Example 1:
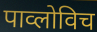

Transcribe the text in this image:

पाव्लोविच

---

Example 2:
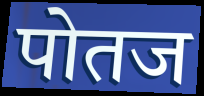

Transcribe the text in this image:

पोतज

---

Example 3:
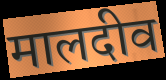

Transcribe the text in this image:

मालदीव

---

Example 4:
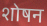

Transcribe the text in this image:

शोषन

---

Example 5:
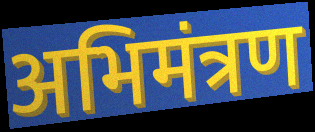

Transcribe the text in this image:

अभिमंत्रण